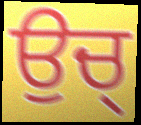
ਉਚ੍